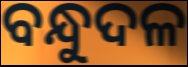
ବନ୍ଧୁଦଳ